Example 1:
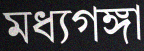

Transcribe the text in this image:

মধ্যগঙ্গা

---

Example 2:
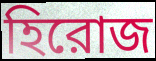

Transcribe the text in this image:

হিরোজ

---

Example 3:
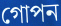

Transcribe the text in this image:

গোপন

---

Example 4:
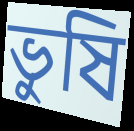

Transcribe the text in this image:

ভুষি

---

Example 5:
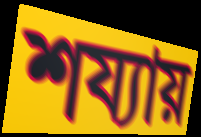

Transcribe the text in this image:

শয্যায়